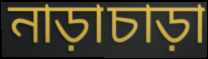
নাড়াচাড়া